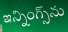
ఇన్నింగ్స్‌ను